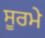
ਸੂਰਮੇ